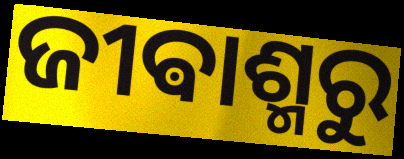
ଜୀଵାଶ୍ମରୁ